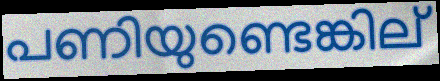
പണിയുണ്ടെങ്കില്